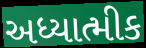
અધ્યાત્મીક